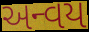
અન્વય